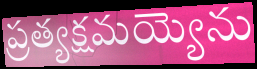
ప్రత్యక్షమయ్యెను